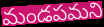
మండపమని